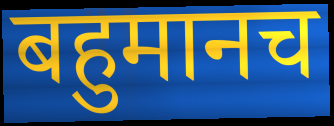
बहुमानच